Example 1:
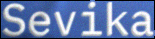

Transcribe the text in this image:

Sevika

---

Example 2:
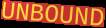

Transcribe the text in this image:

UNBOUND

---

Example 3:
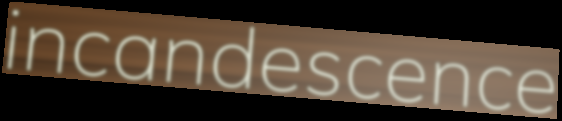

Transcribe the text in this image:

incandescence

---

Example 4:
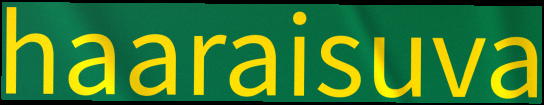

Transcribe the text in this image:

haaraisuva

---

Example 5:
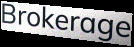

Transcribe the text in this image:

Brokerage